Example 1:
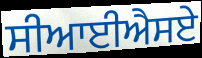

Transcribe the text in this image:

ਸੀਆਈਐਸਏ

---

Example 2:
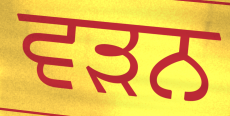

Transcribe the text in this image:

ਵਡ਼ਨ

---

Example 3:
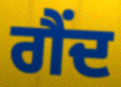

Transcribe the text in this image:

ਗੈਂਦ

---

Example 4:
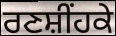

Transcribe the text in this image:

ਰਣਸ਼ੀਂਹਕੇ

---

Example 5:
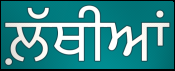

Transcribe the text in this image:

ਲ਼ੱਥੀਆਂ